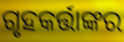
ଗୃହକର୍ତ୍ତାଙ୍କର